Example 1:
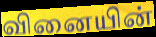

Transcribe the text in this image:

வினையின்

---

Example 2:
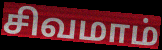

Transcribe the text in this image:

சிவமாம்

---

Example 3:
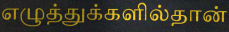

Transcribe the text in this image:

எழுத்துக்களில்தான்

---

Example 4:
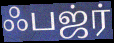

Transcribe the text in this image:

ஃபஜ்ர்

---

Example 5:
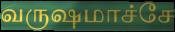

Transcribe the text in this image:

வருஷமாச்சே